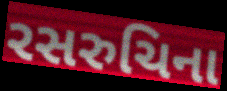
રસરુચિના